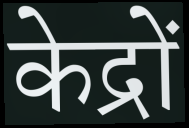
केद्रों